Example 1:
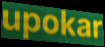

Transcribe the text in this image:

upokar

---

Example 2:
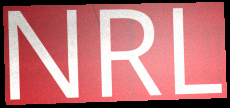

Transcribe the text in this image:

NRL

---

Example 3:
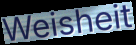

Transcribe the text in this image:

Weisheit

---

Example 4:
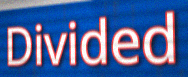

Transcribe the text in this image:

Divided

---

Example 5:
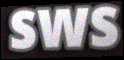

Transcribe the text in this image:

sws